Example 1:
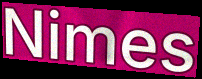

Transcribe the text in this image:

Nimes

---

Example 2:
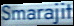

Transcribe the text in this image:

Smarajit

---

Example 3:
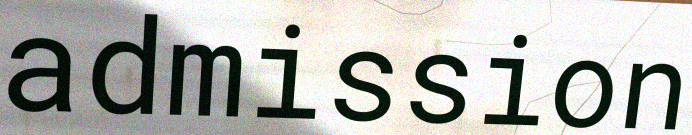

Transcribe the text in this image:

admission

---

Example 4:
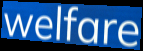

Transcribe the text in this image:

welfare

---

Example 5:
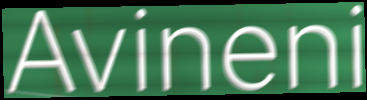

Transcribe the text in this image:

Avineni